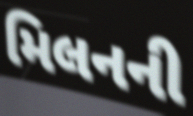
મિલનની